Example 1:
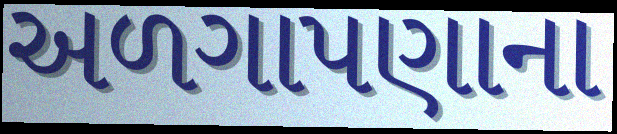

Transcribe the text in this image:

અળગાપણાના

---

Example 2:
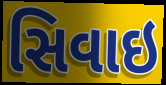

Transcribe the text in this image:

સિવાઇ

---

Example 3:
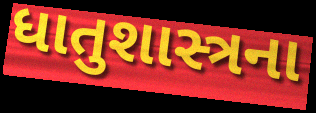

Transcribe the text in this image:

ધાતુશાસ્ત્રના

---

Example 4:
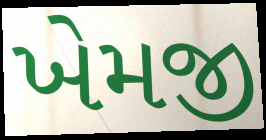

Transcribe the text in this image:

ખેમજી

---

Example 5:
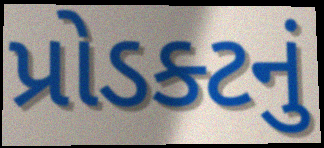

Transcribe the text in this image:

પ્રોડક્ટનું